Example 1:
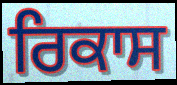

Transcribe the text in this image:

ਰਿਕਾਸ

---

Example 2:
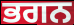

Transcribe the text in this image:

ਭਗਨ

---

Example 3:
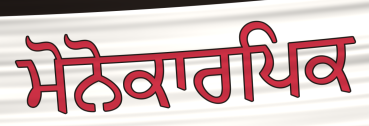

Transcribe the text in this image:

ਮੋਨੋਕਾਰਪਿਕ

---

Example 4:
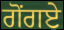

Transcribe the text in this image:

ਗੋਂਗਏ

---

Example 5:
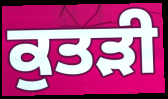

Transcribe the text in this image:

ਕੁਤੜੀ